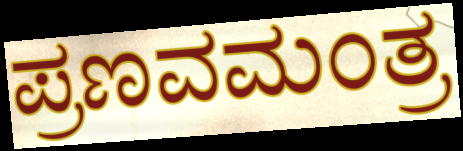
ಪ್ರಣವಮಂತ್ರ